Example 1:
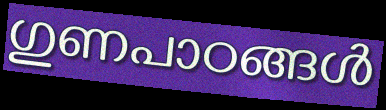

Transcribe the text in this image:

ഗുണപാഠങ്ങൾ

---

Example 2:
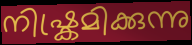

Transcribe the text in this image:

നിഷ്ക്രമിക്കുന്നു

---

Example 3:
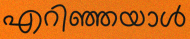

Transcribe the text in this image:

എറിഞ്ഞയാൾ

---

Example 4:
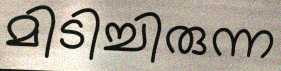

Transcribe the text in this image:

മിടിച്ചിരുന്ന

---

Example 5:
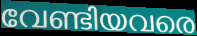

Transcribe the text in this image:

വേണ്ടിയവരെ